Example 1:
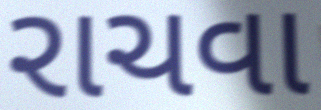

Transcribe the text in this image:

રાચવા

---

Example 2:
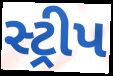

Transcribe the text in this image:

સ્ટ્રીપ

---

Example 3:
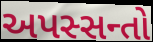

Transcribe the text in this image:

અપસ્સન્તો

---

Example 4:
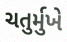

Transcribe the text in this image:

ચતુર્મુખે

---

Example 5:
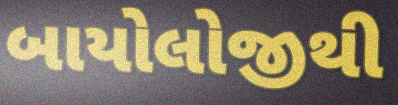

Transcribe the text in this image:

બાયોલોજીથી